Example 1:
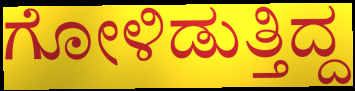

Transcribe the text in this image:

ಗೋಳಿಡುತ್ತಿದ್ದ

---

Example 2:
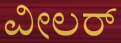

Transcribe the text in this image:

ವೀಲರ್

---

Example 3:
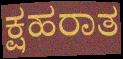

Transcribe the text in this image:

ಕ್ಷಹರಾತ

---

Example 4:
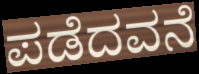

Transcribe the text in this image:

ಪಡೆದವನೆ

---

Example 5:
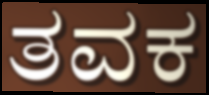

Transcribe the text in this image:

ತವಕ